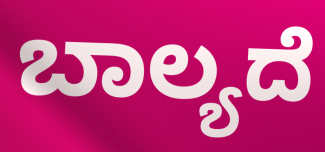
ಬಾಲ್ಯದೆ